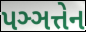
પઞ્ઞત્તેન